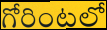
గోరింటలో